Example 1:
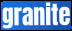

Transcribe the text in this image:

granite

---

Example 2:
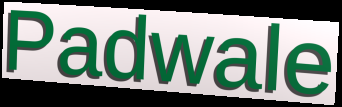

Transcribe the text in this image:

Padwale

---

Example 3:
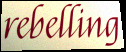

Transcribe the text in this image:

rebelling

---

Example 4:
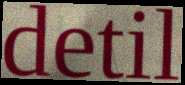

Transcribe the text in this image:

detil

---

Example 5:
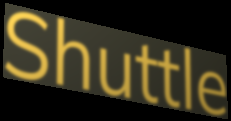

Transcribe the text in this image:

Shuttle